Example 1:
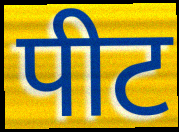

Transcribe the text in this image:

पीट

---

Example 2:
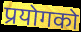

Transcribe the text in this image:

प्रयोगको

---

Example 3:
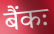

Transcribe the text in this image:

बैंकः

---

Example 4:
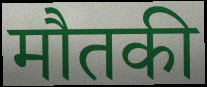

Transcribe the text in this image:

मौतकी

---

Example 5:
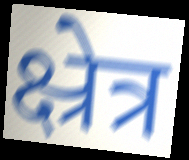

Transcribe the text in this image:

क्ष्रेत्र